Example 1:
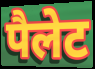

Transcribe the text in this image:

पैलेट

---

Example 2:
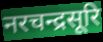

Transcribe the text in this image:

नरचन्द्रसूरि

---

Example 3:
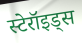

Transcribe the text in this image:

स्टेरॉइड्स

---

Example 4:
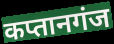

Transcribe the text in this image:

कप्तानगंज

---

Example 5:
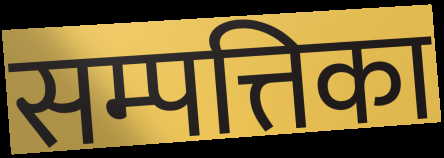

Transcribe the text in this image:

सम्पत्तिका